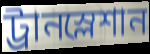
ট্রানস্লেশান